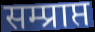
सम्प्राप्त